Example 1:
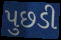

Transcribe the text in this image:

પુછડી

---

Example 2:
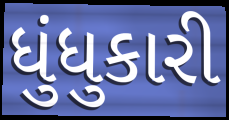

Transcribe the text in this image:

ધુંધુકારી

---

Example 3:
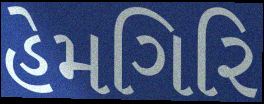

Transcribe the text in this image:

હેમગિરિ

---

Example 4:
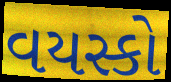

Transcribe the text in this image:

વયસ્કો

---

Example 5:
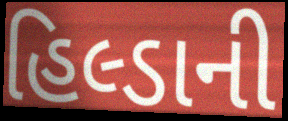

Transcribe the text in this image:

હિલ્ડાની